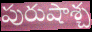
పురుషాశ్చ